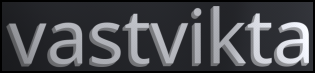
vastvikta